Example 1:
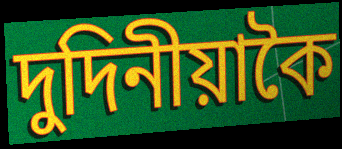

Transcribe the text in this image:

দুদিনীয়াকৈ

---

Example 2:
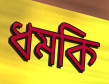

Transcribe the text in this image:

ধমকি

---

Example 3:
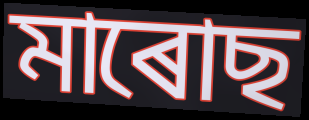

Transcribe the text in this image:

মাৰোছ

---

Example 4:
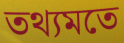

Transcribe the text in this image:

তথ্যমতে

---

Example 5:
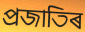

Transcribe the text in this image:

প্ৰজাতিৰ